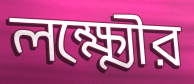
লক্ষ্মৌর